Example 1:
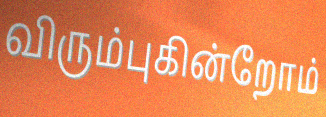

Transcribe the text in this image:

விரும்புகின்றோம்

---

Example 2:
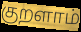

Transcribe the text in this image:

குறளாம்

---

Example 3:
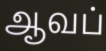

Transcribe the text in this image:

ஆவப்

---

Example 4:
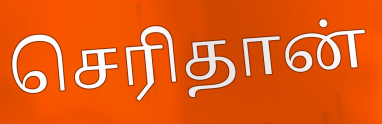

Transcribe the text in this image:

செரிதான்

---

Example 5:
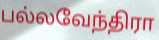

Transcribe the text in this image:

பல்லவேந்திரா